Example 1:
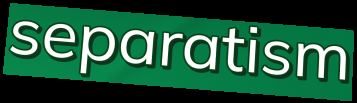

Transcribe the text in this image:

separatism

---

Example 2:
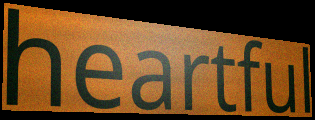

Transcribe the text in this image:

heartful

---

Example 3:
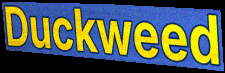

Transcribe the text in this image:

Duckweed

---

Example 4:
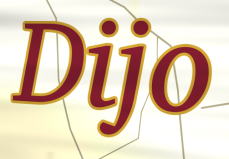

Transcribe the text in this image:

Dijo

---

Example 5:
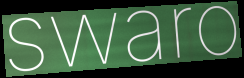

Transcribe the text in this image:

swaro